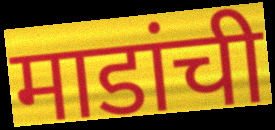
माडांची